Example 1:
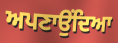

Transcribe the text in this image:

ਅਪਣਾਉਂਦਿਆ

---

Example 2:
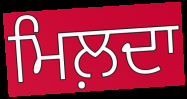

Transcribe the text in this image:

ਮਿਲ਼ਦਾ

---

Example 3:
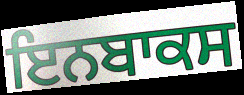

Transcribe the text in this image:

ਇਨਬਾਕਸ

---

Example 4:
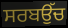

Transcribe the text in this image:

ਸਰਬਉੱਚ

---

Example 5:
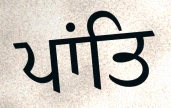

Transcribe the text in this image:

ਪਾਂਤਿ